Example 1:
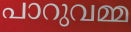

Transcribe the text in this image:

പാറുവമ്മ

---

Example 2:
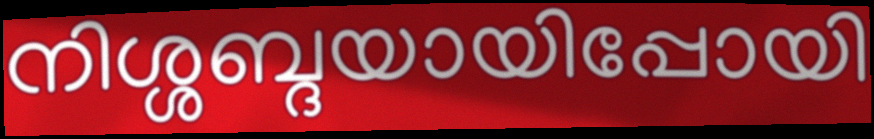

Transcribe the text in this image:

നിശ്ശബ്ദയായിപ്പോയി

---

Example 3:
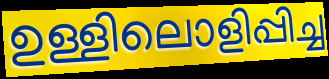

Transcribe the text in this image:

ഉള്ളിലൊളിപ്പിച്ച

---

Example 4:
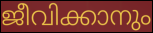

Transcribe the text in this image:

ജീവിക്കാനും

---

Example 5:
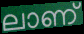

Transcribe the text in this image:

ലാണ്